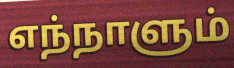
எந்நாளும்